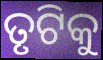
ତୃଟିକୁ